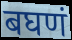
बघणं